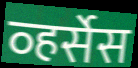
व्हर्सेस